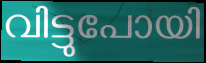
വിട്ടുപോയി